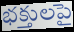
భక్తులపై